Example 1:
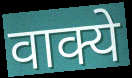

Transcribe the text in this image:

वाक्ये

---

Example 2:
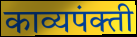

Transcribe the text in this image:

काव्यपंक्ती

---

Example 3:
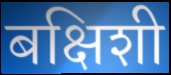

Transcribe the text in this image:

बक्षिशी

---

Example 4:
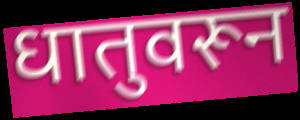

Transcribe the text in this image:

धातुवरून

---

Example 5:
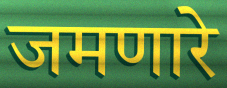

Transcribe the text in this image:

जमणारे